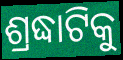
ଶ୍ରଦ୍ଧାଟିକୁ